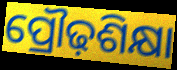
ପ୍ରୌଢ଼ଶିକ୍ଷା